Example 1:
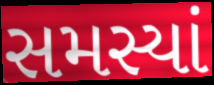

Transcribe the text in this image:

સમસ્યાં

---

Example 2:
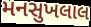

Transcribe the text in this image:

મનસુખલાલ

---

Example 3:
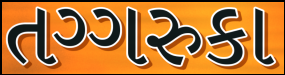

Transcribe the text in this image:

તગ્ગરુકા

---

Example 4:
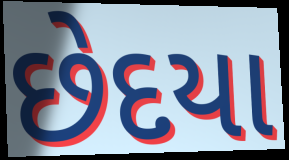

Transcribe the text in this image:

છેદયા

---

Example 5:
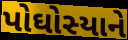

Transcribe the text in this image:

પોઘોસ્યાને